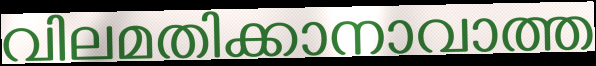
വിലമതിക്കാനാവാത്ത